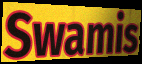
Swamis